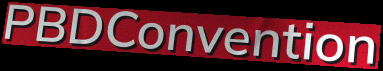
PBDConvention